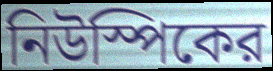
নিউস্পিকের